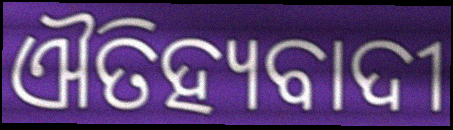
ଐତିହ୍ୟବାଦୀ